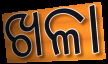
ଖଳା